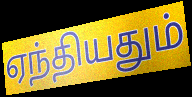
ஏந்தியதும்